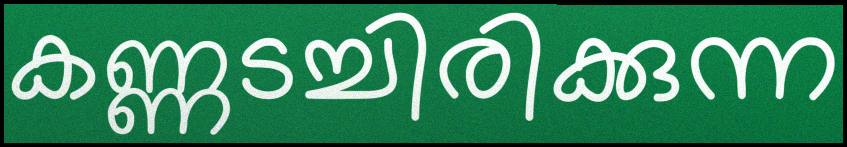
കണ്ണടച്ചിരിക്കുന്ന